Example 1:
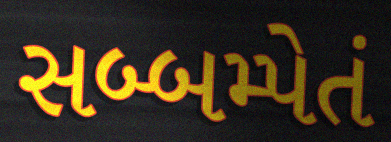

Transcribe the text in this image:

સબ્બમ્પેતં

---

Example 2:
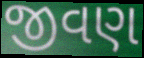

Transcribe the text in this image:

જીવણ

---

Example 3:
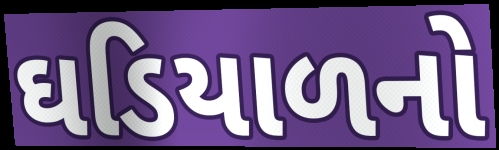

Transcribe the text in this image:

ઘડિયાળનો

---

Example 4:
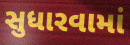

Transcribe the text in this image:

સુધારવામાં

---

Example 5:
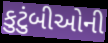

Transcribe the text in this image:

કુટુંબીઓની